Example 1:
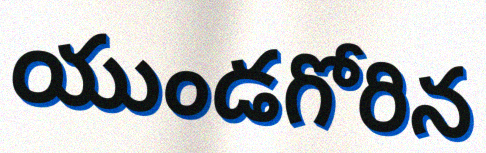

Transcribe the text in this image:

యుండగోరిన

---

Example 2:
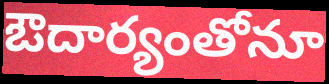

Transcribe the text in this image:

ఔదార్యంతోనూ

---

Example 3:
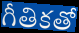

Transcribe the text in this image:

గీతికతో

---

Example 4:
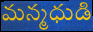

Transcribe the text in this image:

మన్మధుడి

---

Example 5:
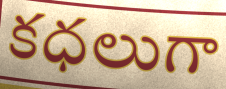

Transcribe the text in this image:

కధలుగా